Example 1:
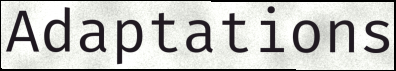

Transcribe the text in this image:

Adaptations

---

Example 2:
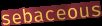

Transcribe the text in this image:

sebaceous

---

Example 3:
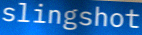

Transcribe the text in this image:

slingshot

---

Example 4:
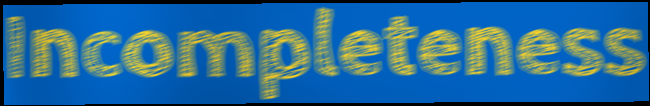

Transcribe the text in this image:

Incompleteness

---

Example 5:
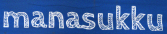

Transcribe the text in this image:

manasukku